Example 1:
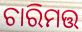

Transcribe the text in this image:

ଚାରିମତ୍ତ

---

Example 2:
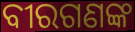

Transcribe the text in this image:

ବୀରଗଣଙ୍କ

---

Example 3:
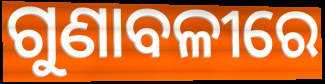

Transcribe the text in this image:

ଗୁଣାବଳୀରେ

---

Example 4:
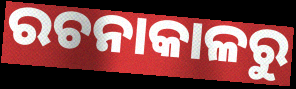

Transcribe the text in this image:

ରଚନାକାଳରୁ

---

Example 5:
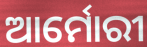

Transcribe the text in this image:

ଆର୍ମୋରୀ